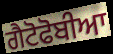
ਗੈਟੋਫੋਬੀਆ